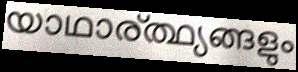
യാഥാര്ത്ഥ്യങ്ങളും